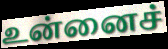
உன்னைச்